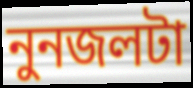
নুনজলটা